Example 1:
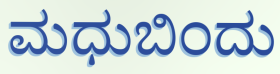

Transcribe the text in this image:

ಮಧುಬಿಂದು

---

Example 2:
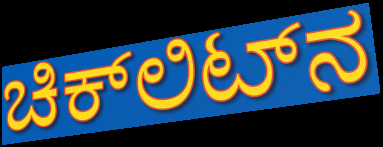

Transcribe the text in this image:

ಚಿಕ್‌ಲಿಟ್‌ನ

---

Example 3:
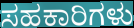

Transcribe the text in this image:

ಸಹಕಾರಿಗಳು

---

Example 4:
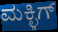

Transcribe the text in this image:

ಮಕ್ಳಿಗ್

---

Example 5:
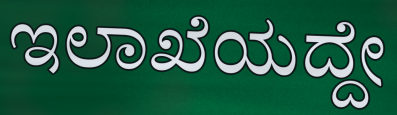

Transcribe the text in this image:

ಇಲಾಖೆಯದ್ದೇ